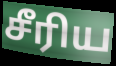
சீரிய